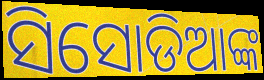
ସିସୋଡିଆଙ୍କ